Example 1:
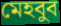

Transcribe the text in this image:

মেহবুব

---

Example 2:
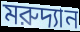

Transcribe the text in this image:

মৰুদ্যান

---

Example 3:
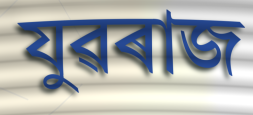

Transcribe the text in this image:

যুৱৰাজ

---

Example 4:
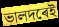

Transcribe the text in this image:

ভালদৰেই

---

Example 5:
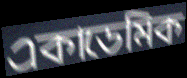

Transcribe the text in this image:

একাডেমিক